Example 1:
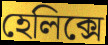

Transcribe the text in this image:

হেলিক্সে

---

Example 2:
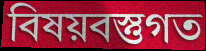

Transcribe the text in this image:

বিষয়বস্তুগত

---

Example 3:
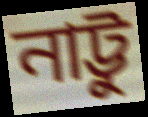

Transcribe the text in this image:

নাট্টু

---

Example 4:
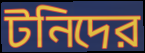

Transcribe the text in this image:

টনিদের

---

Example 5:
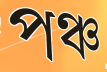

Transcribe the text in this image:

পঞ্চ